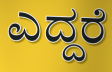
ಎದ್ದರೆ